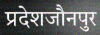
प्रदेशजौनपुर